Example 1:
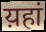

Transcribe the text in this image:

य़हां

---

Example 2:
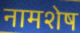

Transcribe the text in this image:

नामशेष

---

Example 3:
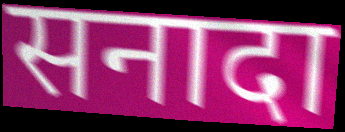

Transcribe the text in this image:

सनादा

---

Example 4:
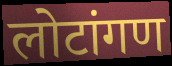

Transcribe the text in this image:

लोटांगण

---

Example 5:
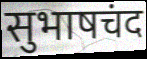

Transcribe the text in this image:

सुभाषचंद